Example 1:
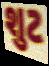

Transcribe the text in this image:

શુટ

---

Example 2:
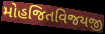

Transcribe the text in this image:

મોહજિતવિજયજી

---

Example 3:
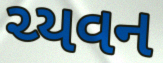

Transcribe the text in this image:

ચ્યવન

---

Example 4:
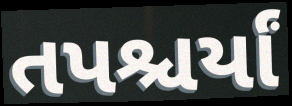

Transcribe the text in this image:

તપશ્ચર્યાં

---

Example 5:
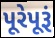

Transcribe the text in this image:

પૂરેપૂરૂં